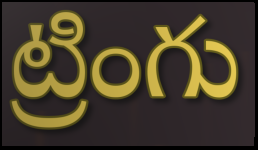
ట్రింగు